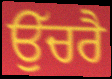
ਉੱਚਰੈ